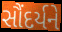
સૌંદર્યને